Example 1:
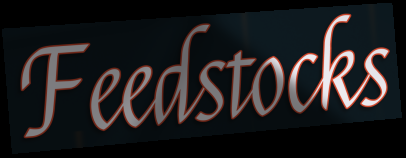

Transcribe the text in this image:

Feedstocks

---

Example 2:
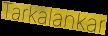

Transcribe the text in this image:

Tarkalankar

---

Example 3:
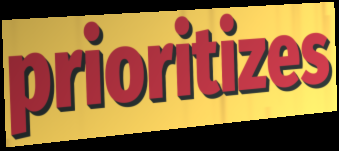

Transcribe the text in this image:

prioritizes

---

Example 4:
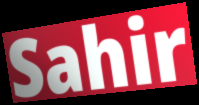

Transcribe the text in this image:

Sahir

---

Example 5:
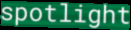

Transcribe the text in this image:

spotlight